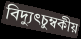
বিদ্যুৎচুম্বকীয়